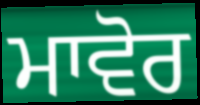
ਮਾਵੋਰ